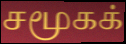
சமூகக்